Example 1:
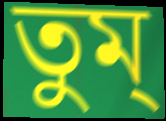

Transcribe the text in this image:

তুম্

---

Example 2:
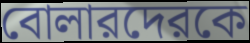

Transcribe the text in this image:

বোলারদেরকে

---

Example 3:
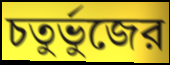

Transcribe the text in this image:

চতুর্ভুজের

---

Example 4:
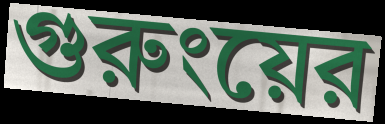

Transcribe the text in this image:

গুরুংয়ের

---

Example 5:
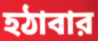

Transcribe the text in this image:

হঠাবার